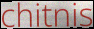
chitnis